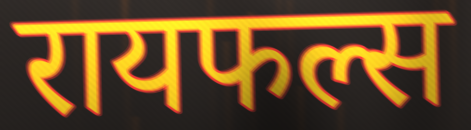
रायफल्स